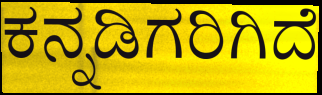
ಕನ್ನಡಿಗರಿಗಿದೆ